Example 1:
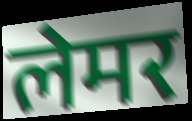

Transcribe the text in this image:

लेमर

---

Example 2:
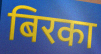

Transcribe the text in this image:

बिरका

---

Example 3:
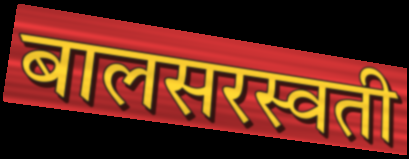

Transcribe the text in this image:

बालसरस्वती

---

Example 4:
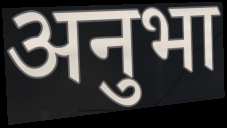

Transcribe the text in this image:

अनुभा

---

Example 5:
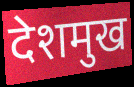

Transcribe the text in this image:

देशमुख